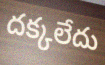
దక్కలేదు